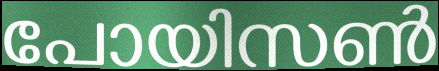
പോയിസൺ